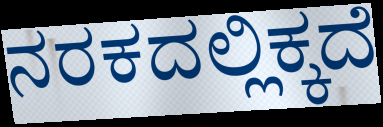
ನರಕದಲ್ಲಿಕ್ಕದೆ